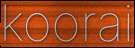
koorai